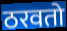
ठरवतो